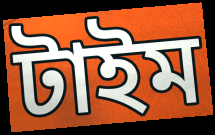
টাইম